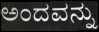
ಅಂದವನ್ನು